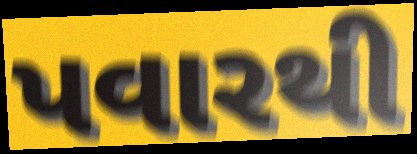
પવારથી